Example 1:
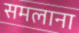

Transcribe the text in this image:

समलाना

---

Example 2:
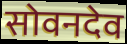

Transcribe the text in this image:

सोवनदेव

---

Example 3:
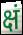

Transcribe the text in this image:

क्षं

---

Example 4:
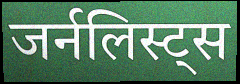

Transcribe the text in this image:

जर्नलिस्ट्स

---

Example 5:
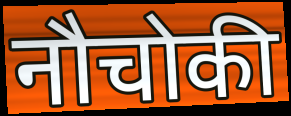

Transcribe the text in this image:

नौचोकी